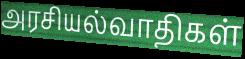
அரசியல்வாதிகள்